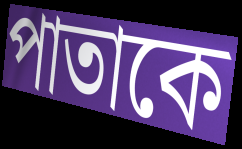
পাতাকে